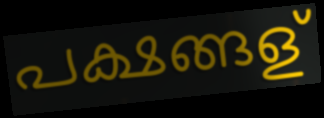
പക്ഷങ്ങള്